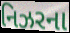
નિઝરના